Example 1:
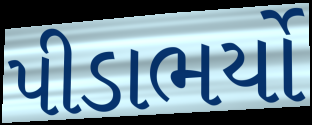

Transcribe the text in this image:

પીડાભર્યો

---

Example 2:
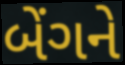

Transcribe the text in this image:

બેંગને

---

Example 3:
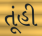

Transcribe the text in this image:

તૂંહી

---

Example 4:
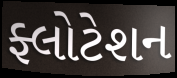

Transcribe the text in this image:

ફ્લોટેશન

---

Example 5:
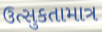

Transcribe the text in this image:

ઉત્સુકતામાત્ર